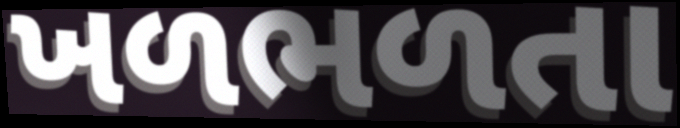
ખળભળતા